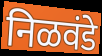
निळवंडे